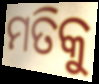
ମତିକୁ